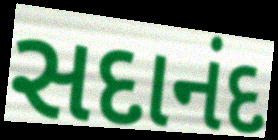
સદાનંદ